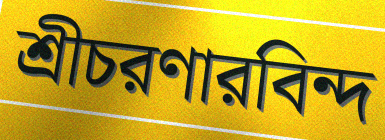
শ্রীচরণারবিন্দ